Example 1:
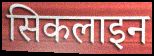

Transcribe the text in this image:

सिकलाइन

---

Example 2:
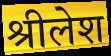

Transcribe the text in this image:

श्रीलेश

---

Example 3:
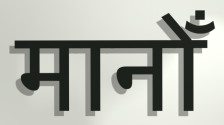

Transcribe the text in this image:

मानोँ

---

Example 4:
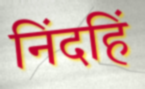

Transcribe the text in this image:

निंदहिं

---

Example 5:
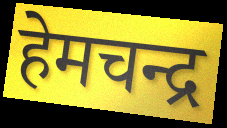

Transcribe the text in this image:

हेमचन्द्र